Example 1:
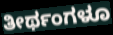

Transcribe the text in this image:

ತೀರ್ಥಂಗಳೂ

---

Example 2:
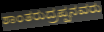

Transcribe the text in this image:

ಶಾಂತರುದ್ರಪ್ಪನವರು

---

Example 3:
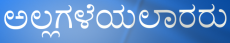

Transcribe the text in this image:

ಅಲ್ಲಗಳೆಯಲಾರರು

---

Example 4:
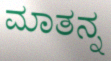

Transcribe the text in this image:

ಮಾತನ್ನ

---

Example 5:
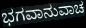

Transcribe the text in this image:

ಭಗವಾನುವಾಚ